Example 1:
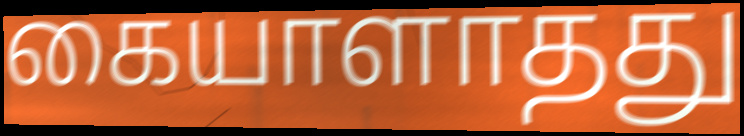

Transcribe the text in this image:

கையாளாதது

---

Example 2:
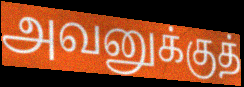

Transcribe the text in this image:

அவனுக்குத்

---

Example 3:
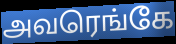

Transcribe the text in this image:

அவரெங்கே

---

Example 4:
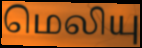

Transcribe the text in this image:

மெலியு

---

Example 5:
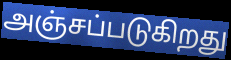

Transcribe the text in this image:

அஞ்சப்படுகிறது